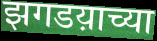
झगडय़ाच्या